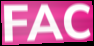
FAC